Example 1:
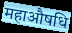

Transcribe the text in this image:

महाऔषधि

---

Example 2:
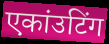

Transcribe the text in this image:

एकांउटिंग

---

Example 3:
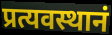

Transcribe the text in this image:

प्रत्यवस्थानं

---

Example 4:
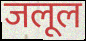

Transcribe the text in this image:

जलूल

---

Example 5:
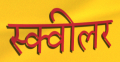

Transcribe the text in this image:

स्क्वीलर